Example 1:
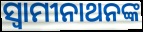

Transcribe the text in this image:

ସ୍ଵାମୀନାଥନଙ୍କ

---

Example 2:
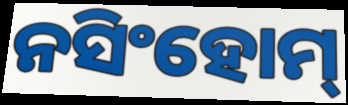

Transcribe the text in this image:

ନସିଂହୋମ୍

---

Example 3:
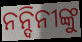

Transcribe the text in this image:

ନନ୍ଦିନୀଙ୍କୁ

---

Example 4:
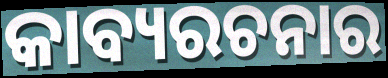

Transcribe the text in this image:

କାବ୍ୟରଚନାର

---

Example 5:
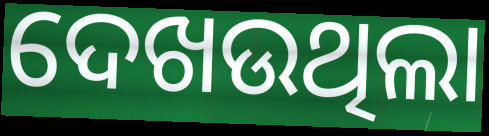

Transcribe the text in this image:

ଦେଖଉଥିଲା